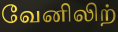
வேனிலிற்